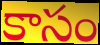
కాసం